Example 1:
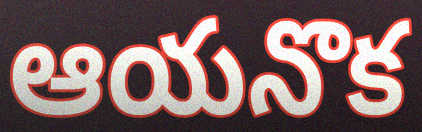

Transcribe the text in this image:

ఆయనొక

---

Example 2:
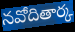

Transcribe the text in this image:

నవోదితార్క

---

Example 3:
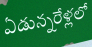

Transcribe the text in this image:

ఏడున్నరేళ్లలో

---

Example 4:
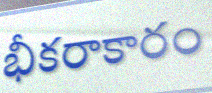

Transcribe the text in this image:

భీకరాకారం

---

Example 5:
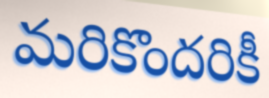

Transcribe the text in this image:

మరికొందరికీ